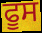
ਫੂਸ